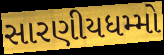
સારણીયધમ્મો